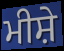
ਮੀਸ਼ੇ